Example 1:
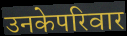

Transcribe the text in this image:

उनकेपरिवार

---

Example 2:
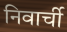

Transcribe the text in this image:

निवार्ची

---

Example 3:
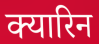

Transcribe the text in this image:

क्यारिन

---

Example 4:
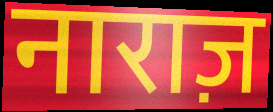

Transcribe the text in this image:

नाराज़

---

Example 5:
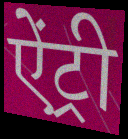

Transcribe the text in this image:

ऐंट्री